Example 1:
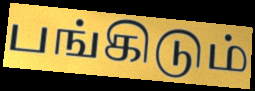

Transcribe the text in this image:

பங்கிடும்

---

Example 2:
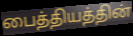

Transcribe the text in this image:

பைத்தியத்தின்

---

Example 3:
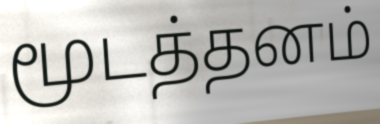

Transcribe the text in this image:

மூடத்தனம்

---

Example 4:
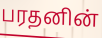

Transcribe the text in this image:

பரதனின்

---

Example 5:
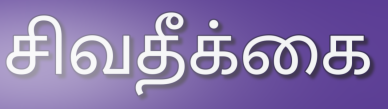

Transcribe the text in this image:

சிவதீக்கை